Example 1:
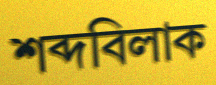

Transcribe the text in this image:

শব্দবিলাক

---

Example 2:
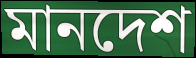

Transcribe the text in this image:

মানদেশ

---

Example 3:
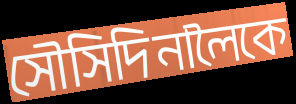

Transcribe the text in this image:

সৌসিদিনালৈকে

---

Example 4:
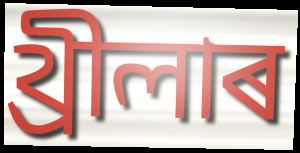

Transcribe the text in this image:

থ্ৰীলাৰ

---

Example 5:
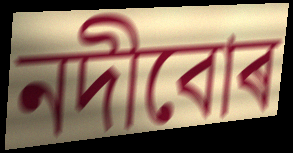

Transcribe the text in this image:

নদীবোৰ